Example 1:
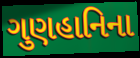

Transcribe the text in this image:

ગુણહાનિના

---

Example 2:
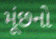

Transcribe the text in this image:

મૂંછનો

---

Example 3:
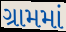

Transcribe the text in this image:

ગ્રામમાં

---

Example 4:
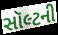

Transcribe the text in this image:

સૉલ્ટની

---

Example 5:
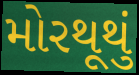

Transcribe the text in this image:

મોરથૂથું